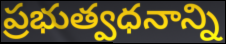
ప్రభుత్వధనాన్ని